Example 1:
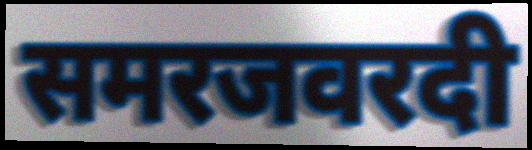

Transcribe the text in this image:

समरजवरदी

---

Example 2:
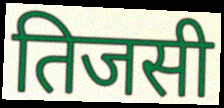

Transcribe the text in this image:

तिजसी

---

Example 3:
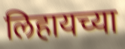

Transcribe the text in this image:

लिहायच्या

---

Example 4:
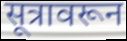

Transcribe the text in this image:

सूत्रावरून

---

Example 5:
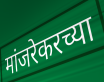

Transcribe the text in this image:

मांजरेकरच्या